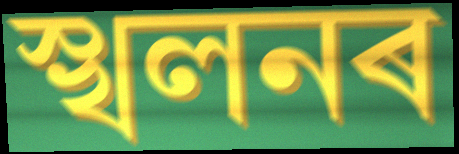
স্খলনৰ